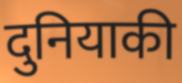
दुनियाकी